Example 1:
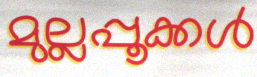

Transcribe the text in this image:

മുല്ലപ്പൂക്കൾ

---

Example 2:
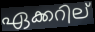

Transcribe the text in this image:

ഏക്കറില്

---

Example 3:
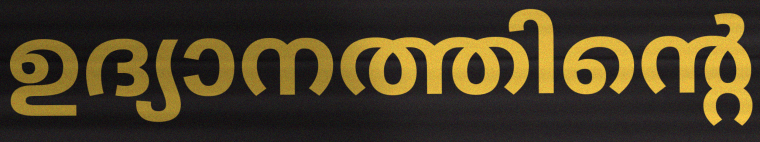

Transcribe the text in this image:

ഉദ്യാനത്തിന്റെ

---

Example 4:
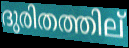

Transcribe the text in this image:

ദുരിതത്തില്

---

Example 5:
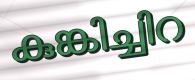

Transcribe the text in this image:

കുങ്കിച്ചിറ